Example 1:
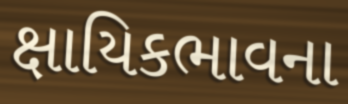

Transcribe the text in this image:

ક્ષાયિકભાવના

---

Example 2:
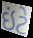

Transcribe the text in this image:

ઇંટે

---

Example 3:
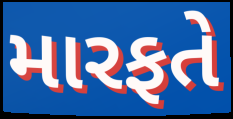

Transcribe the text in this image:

મારફતે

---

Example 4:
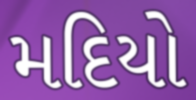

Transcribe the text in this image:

મદિયો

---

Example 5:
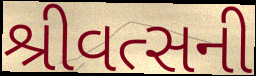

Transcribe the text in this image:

શ્રીવત્સની